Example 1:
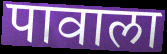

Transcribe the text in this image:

पावाला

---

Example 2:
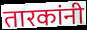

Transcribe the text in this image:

तारकांनी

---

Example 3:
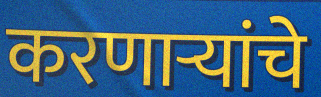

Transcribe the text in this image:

करणाऱ्यांचे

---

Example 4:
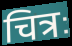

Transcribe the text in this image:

चित्रः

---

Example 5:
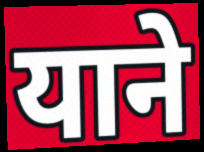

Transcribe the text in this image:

याने